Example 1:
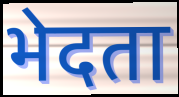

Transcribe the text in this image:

भेदता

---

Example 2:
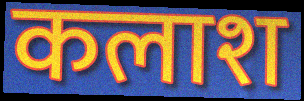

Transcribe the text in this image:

कलाश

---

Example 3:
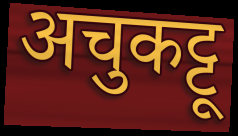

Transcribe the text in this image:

अचुकट्टू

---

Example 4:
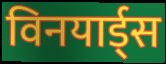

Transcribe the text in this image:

विनयार्ड्स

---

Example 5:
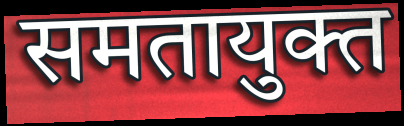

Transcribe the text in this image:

समतायुक्त